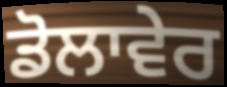
ਡੋਲਾਵੇਰ